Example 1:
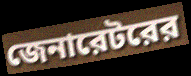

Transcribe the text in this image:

জেনারেটরের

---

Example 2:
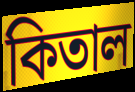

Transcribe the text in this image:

কিতাল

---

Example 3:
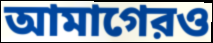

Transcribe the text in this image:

আমাগেরও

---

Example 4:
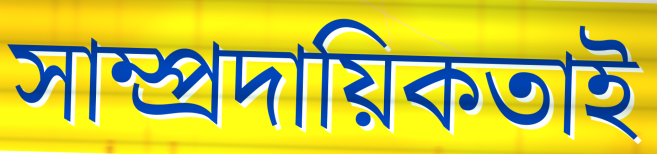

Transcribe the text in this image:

সাম্প্রদায়িকতাই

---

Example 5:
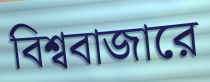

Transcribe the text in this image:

বিশ্ববাজারে